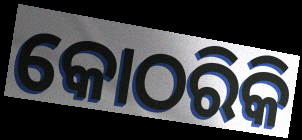
କୋଠରିକି